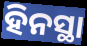
ହିନସ୍ଥା